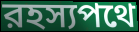
রহস্যপথে